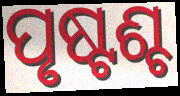
ପୃଷ୍ଟଶ୍ଚ